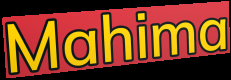
Mahima